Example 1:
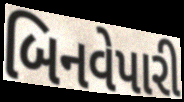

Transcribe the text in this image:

બિનવેપારી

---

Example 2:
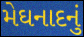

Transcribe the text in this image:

મેઘનાદનું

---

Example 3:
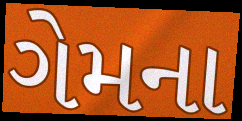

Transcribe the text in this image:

ગેમના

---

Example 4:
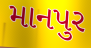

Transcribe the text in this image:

માનપુર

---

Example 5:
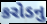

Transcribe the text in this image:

કરોડનુ